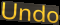
Undo